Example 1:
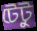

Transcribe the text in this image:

টেটু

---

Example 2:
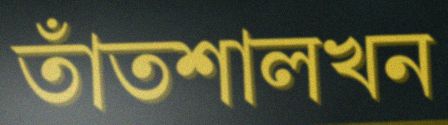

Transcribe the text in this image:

তাঁতশালখন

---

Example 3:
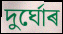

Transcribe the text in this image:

দুৰ্ঘোৰ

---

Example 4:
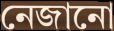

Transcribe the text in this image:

নেজানো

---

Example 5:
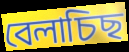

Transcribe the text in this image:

বেলাচিছ